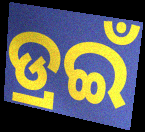
ଡ୍ରଇଁ